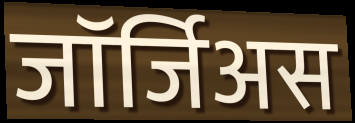
जॉर्जिअस